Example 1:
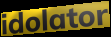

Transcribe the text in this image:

idolator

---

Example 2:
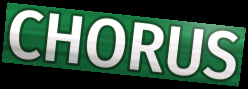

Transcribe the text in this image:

CHORUS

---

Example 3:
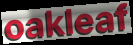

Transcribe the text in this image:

oakleaf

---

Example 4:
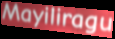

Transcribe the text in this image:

Mayiliragu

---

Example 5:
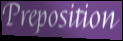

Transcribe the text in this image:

Preposition